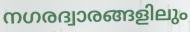
നഗരദ്വാരങ്ങളിലും